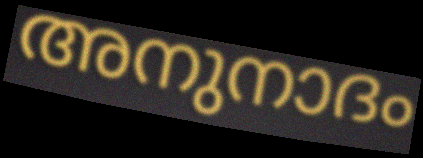
അനുനാദം